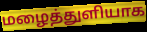
மழைத்துளியாக